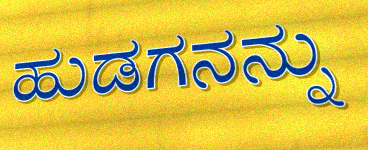
ಹುಡಗನನ್ನು